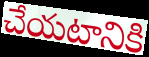
చేయటానికి